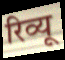
रिव्यू